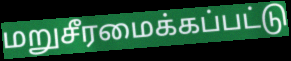
மறுசீரமைக்கப்பட்டு